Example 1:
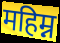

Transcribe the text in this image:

महिम्न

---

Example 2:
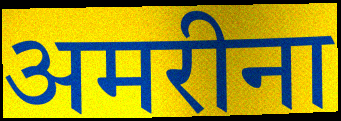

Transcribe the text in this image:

अमरीना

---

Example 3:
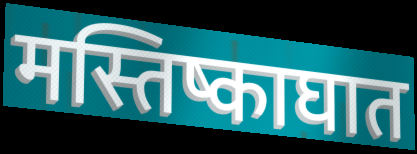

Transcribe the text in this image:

मस्तिष्काघात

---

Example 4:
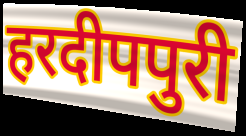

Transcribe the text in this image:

हरदीपपुरी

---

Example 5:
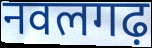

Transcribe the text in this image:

नवलगढ़